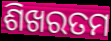
ଶିଖରତମ